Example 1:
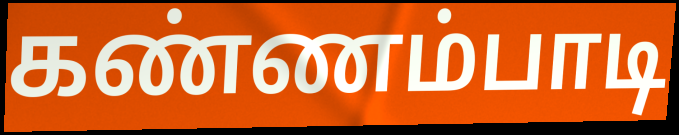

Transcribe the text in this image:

கண்ணம்பாடி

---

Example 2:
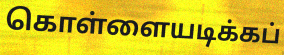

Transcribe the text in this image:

கொள்ளையடிக்கப்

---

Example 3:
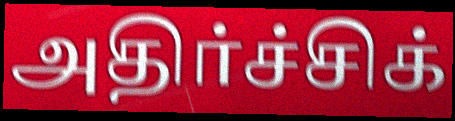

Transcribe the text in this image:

அதிர்ச்சிக்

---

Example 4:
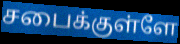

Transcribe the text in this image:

சபைக்குள்ளே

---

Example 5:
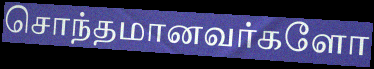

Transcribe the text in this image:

சொந்தமானவர்களோ